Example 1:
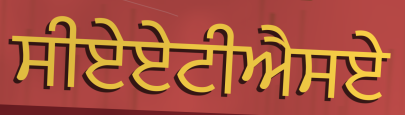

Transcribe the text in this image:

ਸੀਏਏਟੀਐਸਏ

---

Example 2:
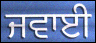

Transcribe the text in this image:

ਜਵਾਈ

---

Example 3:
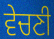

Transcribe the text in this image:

ਵੇਚਣੀ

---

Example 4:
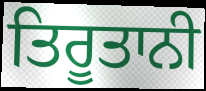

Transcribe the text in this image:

ਤਿਰੂਤਾਨੀ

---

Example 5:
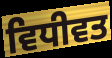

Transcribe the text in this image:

ਵਿਧੀਵਤ